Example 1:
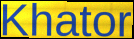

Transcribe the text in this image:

Khator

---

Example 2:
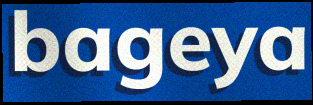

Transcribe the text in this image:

bageya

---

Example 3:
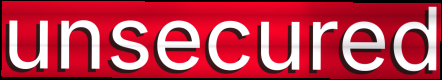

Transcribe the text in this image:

unsecured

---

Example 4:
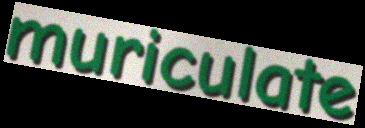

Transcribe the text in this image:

muriculate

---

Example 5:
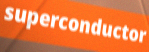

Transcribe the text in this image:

superconductor